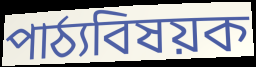
পাঠ্যবিষয়ক